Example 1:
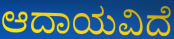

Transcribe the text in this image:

ಆದಾಯವಿದೆ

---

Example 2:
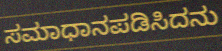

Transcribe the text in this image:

ಸಮಾಧಾನಪಡಿಸಿದನು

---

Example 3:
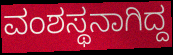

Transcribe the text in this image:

ವಂಶಸ್ಥನಾಗಿದ್ದ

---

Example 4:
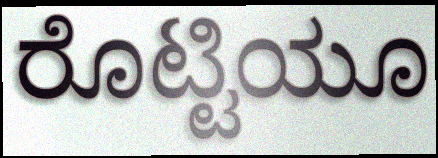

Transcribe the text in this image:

ರೊಟ್ಟಿಯೂ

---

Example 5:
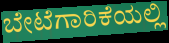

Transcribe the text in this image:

ಬೇಟೆಗಾರಿಕೆಯಲ್ಲಿ